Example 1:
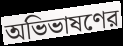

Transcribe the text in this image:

অভিভাষণের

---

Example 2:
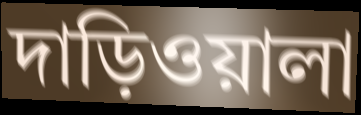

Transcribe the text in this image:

দাড়িওয়ালা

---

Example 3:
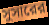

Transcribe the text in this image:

সুসারের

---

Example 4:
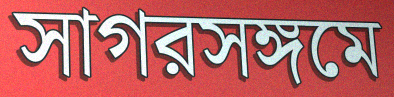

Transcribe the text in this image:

সাগরসঙ্গমে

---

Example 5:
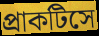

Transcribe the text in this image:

প্রাকটিসে